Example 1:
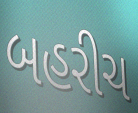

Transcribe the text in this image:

બહરીચ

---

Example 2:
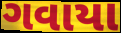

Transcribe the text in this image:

ગવાયા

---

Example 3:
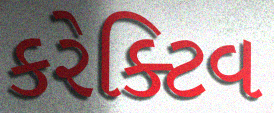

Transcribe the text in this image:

કરેક્ટિવ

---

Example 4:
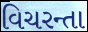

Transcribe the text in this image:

વિચરન્તા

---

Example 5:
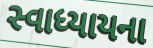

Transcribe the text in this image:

સ્વાધ્યાયના